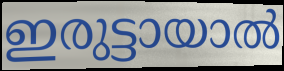
ഇരുട്ടായാൽ